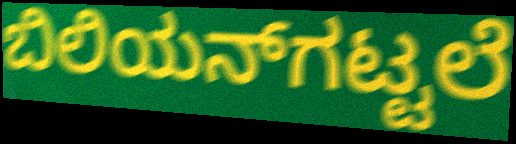
ಬಿಲಿಯನ್‌ಗಟ್ಟಲೆ